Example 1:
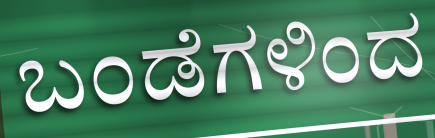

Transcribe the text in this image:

ಬಂಡೆಗಳಿಂದ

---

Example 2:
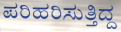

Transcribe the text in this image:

ಪರಿಹರಿಸುತ್ತಿದ್ದ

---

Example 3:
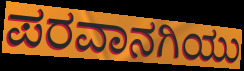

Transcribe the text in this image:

ಪರವಾನಗಿಯು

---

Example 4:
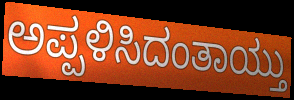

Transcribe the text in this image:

ಅಪ್ಪಳಿಸಿದಂತಾಯ್ತು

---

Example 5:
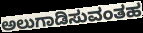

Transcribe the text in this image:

ಅಲುಗಾಡಿಸುವಂತಹ